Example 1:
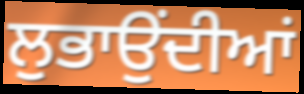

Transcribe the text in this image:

ਲੁਭਾਉਂਦੀਆਂ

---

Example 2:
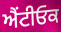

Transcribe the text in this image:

ਐਂਟੀਓਕ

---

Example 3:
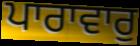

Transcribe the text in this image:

ਪਾਰਾਵਾਰੁ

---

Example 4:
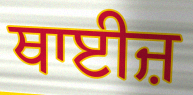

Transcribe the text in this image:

ਥਾਈਜ਼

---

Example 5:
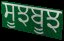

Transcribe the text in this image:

ਸੂਝਬੂਝ